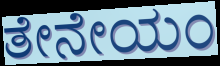
ತೇನೇಯಂ